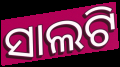
ସାଲଟି